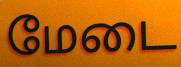
மேடை